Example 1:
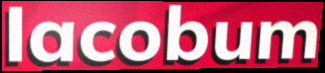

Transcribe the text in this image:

Iacobum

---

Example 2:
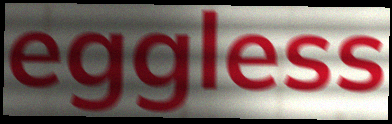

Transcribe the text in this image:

eggless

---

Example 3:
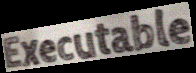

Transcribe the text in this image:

Executable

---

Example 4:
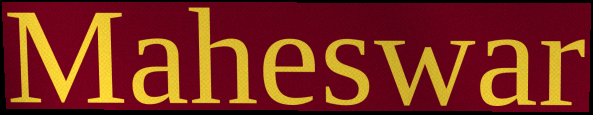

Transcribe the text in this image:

Maheswar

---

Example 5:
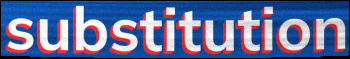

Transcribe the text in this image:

substitution